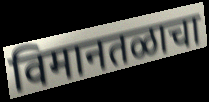
विमानतळाचा